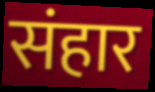
संहार